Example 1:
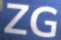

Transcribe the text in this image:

ZG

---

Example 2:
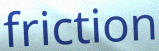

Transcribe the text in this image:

friction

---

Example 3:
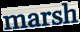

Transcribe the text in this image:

marsh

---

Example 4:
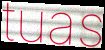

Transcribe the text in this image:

tuas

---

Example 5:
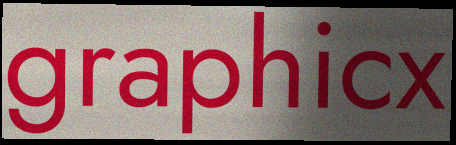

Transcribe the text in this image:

graphicx